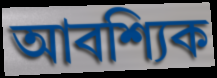
আবশ্যিক